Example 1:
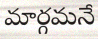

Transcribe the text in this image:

మార్గమనే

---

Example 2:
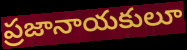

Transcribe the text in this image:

ప్రజానాయకులూ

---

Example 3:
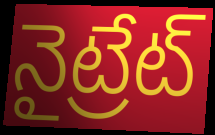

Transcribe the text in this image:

నైట్రేట్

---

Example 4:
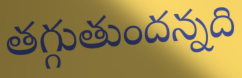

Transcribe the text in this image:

తగ్గుతుందన్నది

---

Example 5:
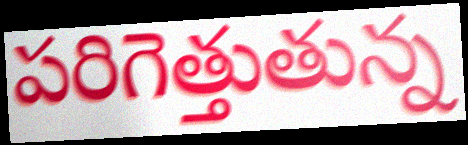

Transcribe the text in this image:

పరిగెత్తుతున్న